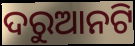
ଦରୁଆନଟି